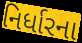
નિર્ધારના